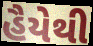
હૈયેથી